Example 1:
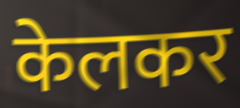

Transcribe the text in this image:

केलकर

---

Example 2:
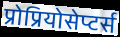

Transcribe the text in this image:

प्रोप्रियोसेप्टर्स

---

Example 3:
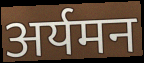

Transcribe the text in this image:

अर्यमन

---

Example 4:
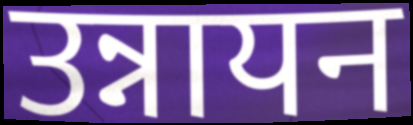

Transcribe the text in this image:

उन्नायन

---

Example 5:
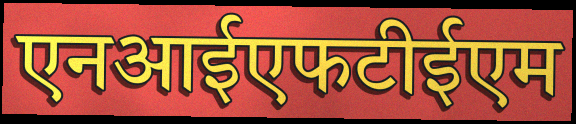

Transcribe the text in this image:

एनआईएफटीईएम